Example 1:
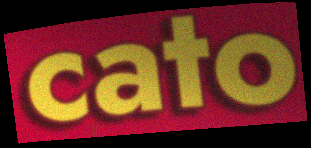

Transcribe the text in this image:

cato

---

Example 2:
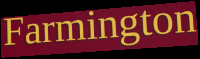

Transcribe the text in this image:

Farmington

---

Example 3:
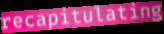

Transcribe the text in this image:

recapitulating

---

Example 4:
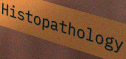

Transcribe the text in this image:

Histopathology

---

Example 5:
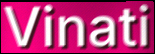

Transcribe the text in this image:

Vinati